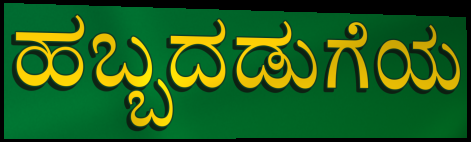
ಹಬ್ಬದಡುಗೆಯ